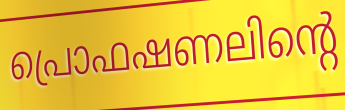
പ്രൊഫഷണലിന്റെ